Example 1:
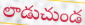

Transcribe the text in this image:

లాడుచుండ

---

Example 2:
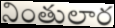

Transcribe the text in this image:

నింతులార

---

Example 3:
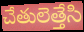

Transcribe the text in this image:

చేతులెత్తేసి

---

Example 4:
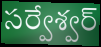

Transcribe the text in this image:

సర్వేశ్వర్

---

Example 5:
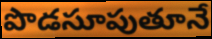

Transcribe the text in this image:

పొడసూపుతూనే